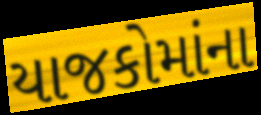
યાજકોમાંના